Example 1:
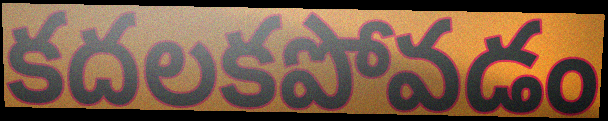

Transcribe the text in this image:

కదలకపోవడం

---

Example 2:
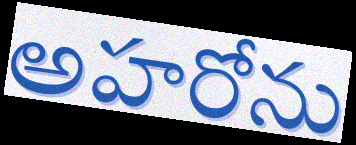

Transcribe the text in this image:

అహరోను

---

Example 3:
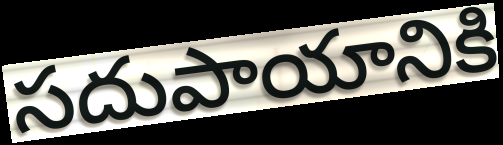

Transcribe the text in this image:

సదుపాయానికి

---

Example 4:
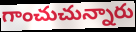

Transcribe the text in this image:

గాంచుచున్నారు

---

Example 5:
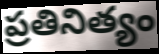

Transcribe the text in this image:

ప్రతినిత్యం